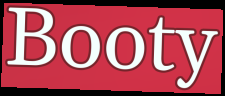
Booty